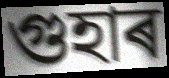
গুহাৰ